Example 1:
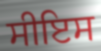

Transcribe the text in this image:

ਸੀਇਸ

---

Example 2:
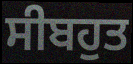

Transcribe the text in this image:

ਸੀਬਹੁਤ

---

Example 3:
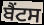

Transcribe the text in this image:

ਬੈਂਟਸ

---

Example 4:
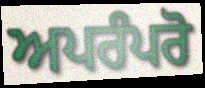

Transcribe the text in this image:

ਅਪਰੰਪਰੋ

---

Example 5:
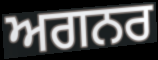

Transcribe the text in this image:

ਅਗਨਰ